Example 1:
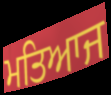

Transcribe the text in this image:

ਮਤਿਆਜ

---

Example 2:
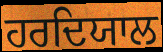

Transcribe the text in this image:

ਹਰਦਿਯਾਲ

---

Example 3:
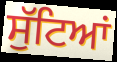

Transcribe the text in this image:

ਸੁੱਟਿਆਂ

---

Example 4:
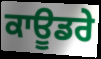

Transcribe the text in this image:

ਕਾਊਡਰੇ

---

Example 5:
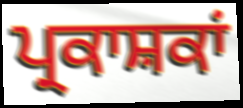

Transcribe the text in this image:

ਪ੍ਰਕਾਸ਼ਕਾਂ